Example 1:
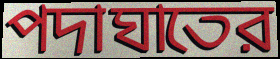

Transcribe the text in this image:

পদাঘাতের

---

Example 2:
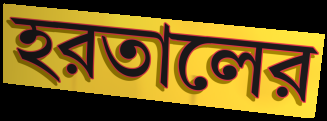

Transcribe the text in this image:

হরতালের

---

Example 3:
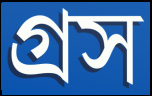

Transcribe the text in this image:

গ্রস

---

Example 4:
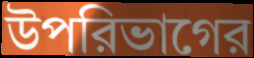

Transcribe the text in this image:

উপরিভাগের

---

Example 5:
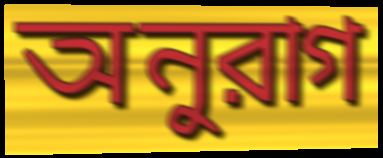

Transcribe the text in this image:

অনুরাগ